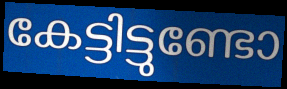
കേട്ടിട്ടുണ്ടോ